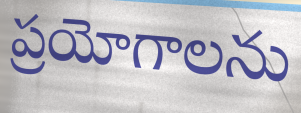
ప్రయోగాలను